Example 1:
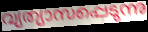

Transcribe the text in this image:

വ്യത്യാസപ്പെടുന്നു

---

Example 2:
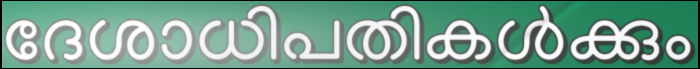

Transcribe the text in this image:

ദേശാധിപതികൾക്കും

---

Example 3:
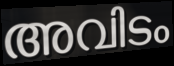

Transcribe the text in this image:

അവിടം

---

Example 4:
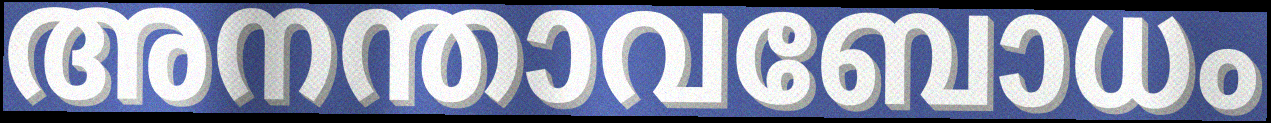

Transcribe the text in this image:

അനന്താവബോധം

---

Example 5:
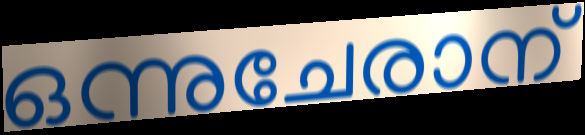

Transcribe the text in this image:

ഒന്നുചേരാന്